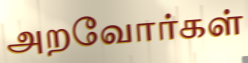
அறவோர்கள்